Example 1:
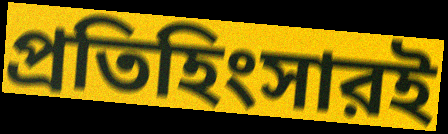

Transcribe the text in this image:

প্রতিহিংসারই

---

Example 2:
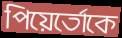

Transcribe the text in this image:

পিয়ের্তোকে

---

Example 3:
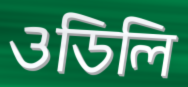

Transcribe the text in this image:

ওডিলি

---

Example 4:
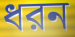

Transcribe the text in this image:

ধরন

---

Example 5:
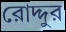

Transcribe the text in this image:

রোদ্দুর